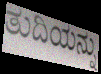
ತುದಿಯನ್ನು